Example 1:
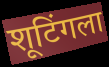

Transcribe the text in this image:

शूटिंगला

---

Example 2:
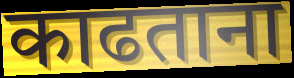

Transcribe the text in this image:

काढताना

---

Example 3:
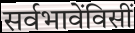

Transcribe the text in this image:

सर्वभावेंविसीं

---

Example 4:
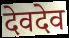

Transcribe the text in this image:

देवदेव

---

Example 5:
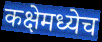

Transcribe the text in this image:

कक्षेमध्येच